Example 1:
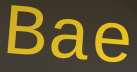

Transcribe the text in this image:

Bae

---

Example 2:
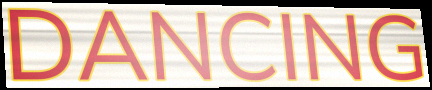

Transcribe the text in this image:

DANCING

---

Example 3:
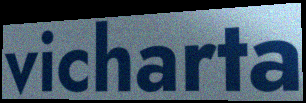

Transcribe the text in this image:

vicharta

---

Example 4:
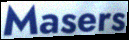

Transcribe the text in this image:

Masers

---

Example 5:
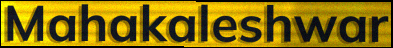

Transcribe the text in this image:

Mahakaleshwar